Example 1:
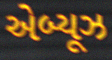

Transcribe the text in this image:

એબ્યૂઝ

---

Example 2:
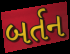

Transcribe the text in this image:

બર્તન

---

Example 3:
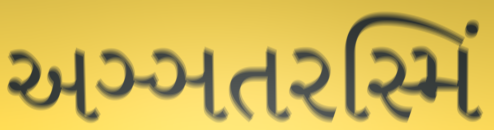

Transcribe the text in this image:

અઞ્ઞતરસ્મિં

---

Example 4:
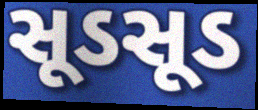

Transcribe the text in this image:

સૂડસૂડ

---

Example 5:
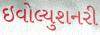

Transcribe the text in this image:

ઇવોલ્યુશનરી